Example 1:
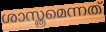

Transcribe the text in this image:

ശാസ്ത്രമെന്നത്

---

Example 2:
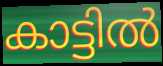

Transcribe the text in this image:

കാട്ടിൽ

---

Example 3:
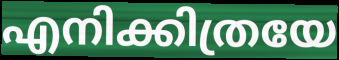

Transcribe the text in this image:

എനിക്കിത്രയേ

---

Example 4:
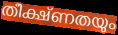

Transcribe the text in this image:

തീക്ഷ്‌ണതയും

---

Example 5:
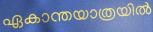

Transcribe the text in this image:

ഏകാന്തയാത്രയിൽ